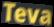
Teva